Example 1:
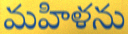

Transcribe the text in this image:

మహిళను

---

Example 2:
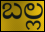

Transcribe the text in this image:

బల్ల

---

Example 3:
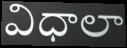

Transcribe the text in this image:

విధాలా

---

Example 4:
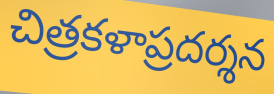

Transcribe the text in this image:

చిత్రకళాప్రదర్శన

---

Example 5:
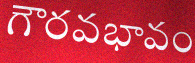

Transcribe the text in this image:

గౌరవభావం